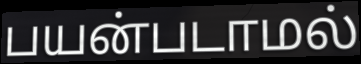
பயன்படாமல்